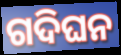
ଗଦିଘନ